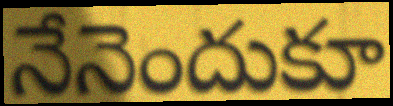
నేనెందుకూ